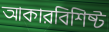
আকারবিশিষ্ট